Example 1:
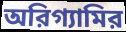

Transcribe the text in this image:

অরিগ্যামির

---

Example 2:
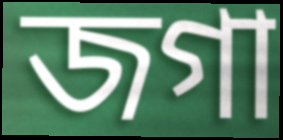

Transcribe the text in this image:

জগা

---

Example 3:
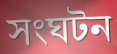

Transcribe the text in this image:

সংঘটন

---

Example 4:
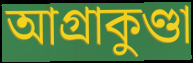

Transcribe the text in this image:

আগ্রাকুণ্ডা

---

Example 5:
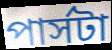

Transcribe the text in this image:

পার্সটা